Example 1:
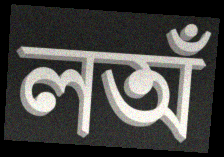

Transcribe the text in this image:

লঅঁ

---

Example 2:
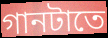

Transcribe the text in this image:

গানটাতে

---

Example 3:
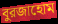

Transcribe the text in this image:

বুরজাহোম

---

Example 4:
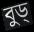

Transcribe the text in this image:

বুড্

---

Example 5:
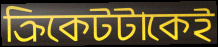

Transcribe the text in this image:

ক্রিকেটটাকেই